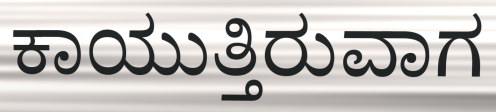
ಕಾಯುತ್ತಿರುವಾಗ